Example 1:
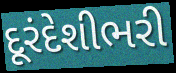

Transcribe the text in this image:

દૂરંદેશીભરી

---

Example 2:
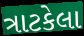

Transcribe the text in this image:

ત્રાટકેલા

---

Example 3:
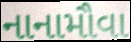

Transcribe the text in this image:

નાનામૌવા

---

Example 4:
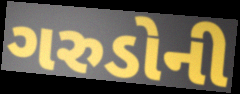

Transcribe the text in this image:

ગરુડોની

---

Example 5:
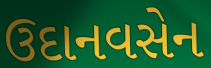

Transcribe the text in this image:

ઉદાનવસેન